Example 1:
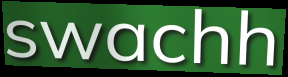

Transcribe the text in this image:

swachh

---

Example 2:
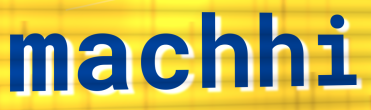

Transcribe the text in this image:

machhi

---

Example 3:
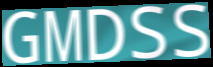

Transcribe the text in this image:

GMDSS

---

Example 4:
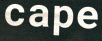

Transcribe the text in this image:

cape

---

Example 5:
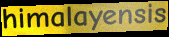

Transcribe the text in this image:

himalayensis